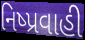
નિષ્પ્રવાહી